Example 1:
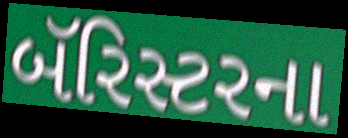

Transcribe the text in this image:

બૅરિસ્ટરના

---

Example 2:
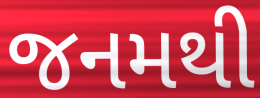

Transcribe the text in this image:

જનમથી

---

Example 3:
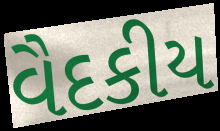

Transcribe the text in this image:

વૈદકીય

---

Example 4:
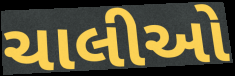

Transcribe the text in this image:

ચાલીઓ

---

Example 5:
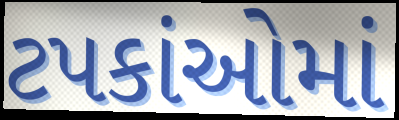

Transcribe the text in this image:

ટપકાંઓમાં